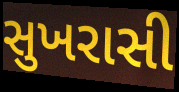
સુખરાસી